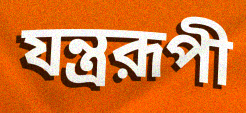
যন্ত্ররূপী